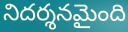
నిదర్శనమైంది